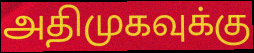
அதிமுகவுக்கு